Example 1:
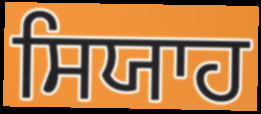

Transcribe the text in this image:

ਸਿਯਾਹ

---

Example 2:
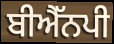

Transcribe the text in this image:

ਬੀਐੱਨਪੀ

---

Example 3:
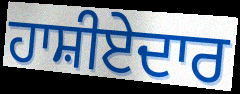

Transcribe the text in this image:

ਹਾਸ਼ੀਏਦਾਰ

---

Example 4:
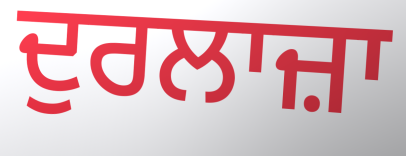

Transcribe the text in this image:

ਦੁਰਲਾਜ਼ਾ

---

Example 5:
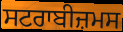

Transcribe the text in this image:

ਸਟਰਾਬੀਜ਼ਮਸ